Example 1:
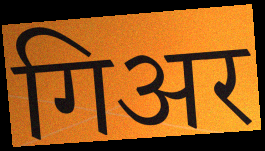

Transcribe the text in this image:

गिअर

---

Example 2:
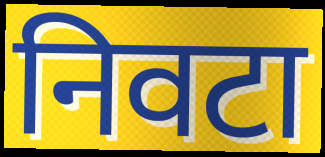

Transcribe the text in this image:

निवटा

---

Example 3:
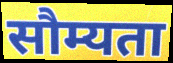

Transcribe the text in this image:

सौम्यता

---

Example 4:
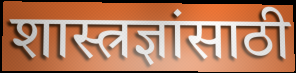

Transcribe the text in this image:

शास्त्रज्ञांसाठी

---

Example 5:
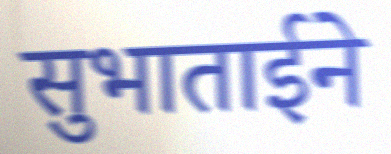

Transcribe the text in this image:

सुभाताईने